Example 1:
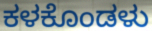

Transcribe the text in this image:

ಕಳಕೊಂಡಳು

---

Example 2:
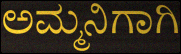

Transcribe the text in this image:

ಅಮ್ಮನಿಗಾಗಿ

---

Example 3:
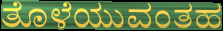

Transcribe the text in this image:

ತೊಳೆಯುವಂತಹ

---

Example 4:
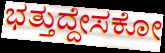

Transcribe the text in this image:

ಭತ್ತುದ್ದೇಸಕೋ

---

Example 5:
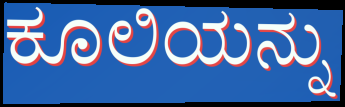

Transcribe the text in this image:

ಕೂಲಿಯನ್ನು